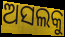
ଅସଲକୁ